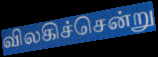
விலகிச்சென்று